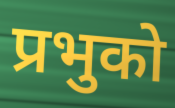
प्रभुको